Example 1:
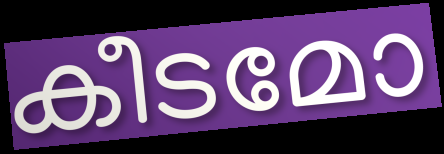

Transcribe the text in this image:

കീടമോ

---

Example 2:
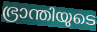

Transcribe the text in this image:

ഭ്രാന്തിയുടെ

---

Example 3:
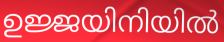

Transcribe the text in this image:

ഉജ്ജയിനിയിൽ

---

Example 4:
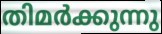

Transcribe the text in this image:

തിമർക്കുന്നു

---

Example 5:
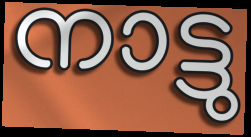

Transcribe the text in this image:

നാട്ടു